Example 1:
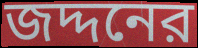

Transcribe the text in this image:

জদ্দনের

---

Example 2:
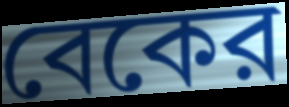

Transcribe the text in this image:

বেকের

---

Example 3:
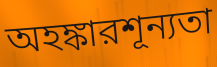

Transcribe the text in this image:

অহঙ্কারশূন্যতা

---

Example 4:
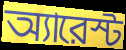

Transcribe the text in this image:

অ্যারেস্ট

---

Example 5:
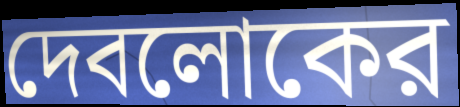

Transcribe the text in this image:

দেবলোকের